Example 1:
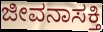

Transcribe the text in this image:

ಜೀವನಾಸಕ್ತಿ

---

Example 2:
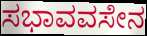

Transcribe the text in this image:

ಸಭಾವವಸೇನ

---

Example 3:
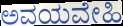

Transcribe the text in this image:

ಅವಯವೇಹಿ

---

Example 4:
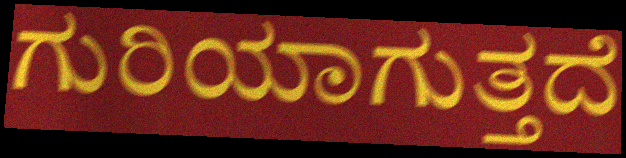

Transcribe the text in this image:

ಗುರಿಯಾಗುತ್ತದೆ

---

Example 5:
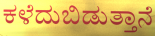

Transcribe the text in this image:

ಕಳೆದುಬಿಡುತ್ತಾನೆ